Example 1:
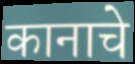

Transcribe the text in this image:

कानाचे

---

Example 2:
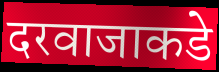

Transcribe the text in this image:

दरवाजाकडे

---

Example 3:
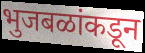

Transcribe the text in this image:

भुजबळांकडून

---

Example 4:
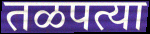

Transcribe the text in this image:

तळपत्या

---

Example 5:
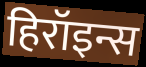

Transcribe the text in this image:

हिरॉइन्स